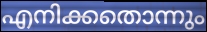
എനിക്കതൊന്നും